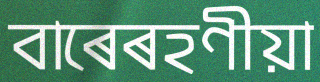
বাৰেৰহণীয়া